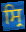
ਸ੍ਰਿ